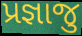
પ્રજ્ઞાજુ